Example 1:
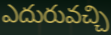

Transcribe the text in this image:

ఎదురువచ్చి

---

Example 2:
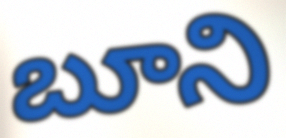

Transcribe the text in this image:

బూని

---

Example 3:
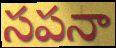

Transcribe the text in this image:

సపనా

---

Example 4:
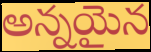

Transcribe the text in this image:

అన్నయైన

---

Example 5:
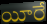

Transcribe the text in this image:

యీరే